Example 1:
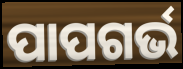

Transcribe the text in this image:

ପାପଗର୍ଭ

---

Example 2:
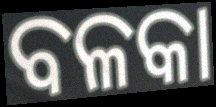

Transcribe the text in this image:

ବଳକା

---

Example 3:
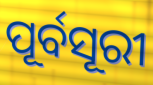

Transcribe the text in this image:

ପୂର୍ବସୂରୀ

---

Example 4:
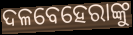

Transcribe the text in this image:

ଦଳବେହେରାଙ୍କୁ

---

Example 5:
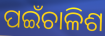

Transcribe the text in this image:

ପଇଁଚାଳିଶ